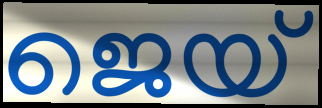
ജെയ്